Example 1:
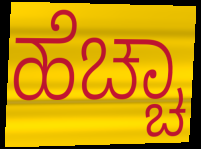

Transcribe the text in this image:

ಹೆಚ್ಚಾ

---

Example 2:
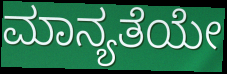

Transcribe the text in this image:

ಮಾನ್ಯತೆಯೇ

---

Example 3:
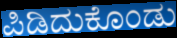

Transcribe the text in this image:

ಪಿಡಿದುಕೊಂಡು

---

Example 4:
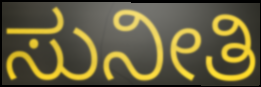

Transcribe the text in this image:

ಸುನೀತಿ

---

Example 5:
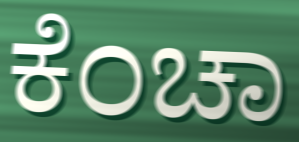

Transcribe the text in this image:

ಕೆಂಚಾ